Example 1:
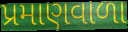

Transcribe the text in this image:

પ્રમાણવાળા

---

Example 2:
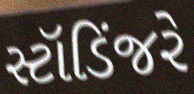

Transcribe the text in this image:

સ્ટૉડિંજરે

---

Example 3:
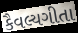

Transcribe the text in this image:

કૈવલ્યગીતા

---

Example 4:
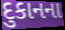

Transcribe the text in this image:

દુકાનના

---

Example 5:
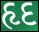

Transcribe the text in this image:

હૃદ